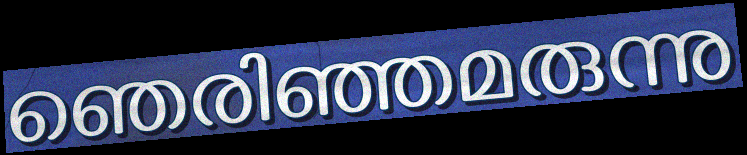
ഞെരിഞ്ഞമരുന്നു